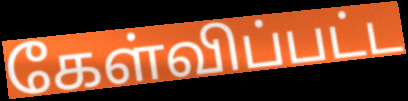
கேள்விப்பட்ட